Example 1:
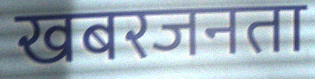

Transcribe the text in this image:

खबरजनता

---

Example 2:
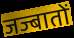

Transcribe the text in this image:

जज्बातों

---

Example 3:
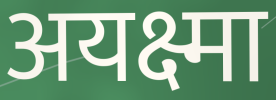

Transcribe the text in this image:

अयक्ष्मा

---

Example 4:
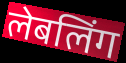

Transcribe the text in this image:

लेबलिंग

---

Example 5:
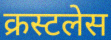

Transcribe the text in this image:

क्रस्टलेस